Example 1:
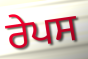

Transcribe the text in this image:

ਰੇਪਸ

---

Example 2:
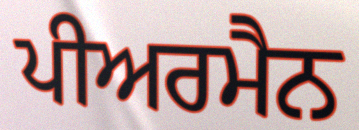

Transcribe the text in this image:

ਪੀਅਰਮੈਨ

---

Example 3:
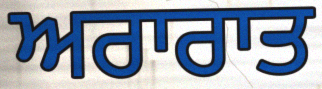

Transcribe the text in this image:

ਅਰਾਰਾਤ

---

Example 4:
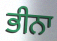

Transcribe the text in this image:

ਭੀਨਾ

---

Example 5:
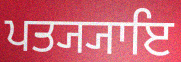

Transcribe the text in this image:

ਪਤ੍ਯ੍ਯਾਇ